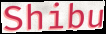
Shibu